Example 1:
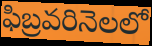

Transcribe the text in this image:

ఫిబ్రవరినెలలో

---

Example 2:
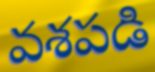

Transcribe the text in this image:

వశపడి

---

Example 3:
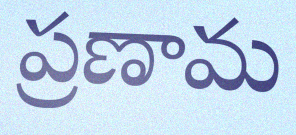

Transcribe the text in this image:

ప్రణామ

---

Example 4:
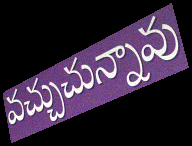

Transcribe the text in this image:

వచ్చుచున్నావు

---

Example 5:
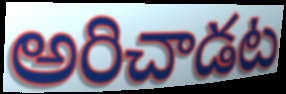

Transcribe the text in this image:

అరిచాడట